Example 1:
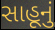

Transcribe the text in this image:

સાહૂનું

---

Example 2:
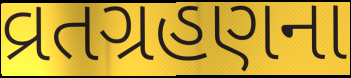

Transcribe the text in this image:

વ્રતગ્રહણના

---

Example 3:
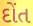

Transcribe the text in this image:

દોંત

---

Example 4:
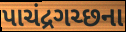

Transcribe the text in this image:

પાચંદ્રગચ્છના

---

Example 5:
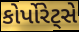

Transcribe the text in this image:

કોર્પોરેટ્સે